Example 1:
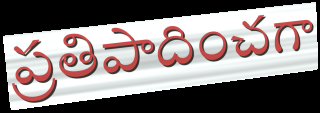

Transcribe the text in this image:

ప్రతిపాదించగా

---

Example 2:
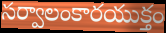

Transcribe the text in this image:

సర్వాలంకారయుక్తం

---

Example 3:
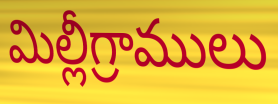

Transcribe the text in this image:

మిల్లీగ్రాములు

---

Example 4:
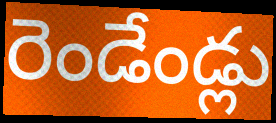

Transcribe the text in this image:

రెండేండ్లు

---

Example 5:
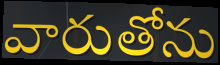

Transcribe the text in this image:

వారుతోను